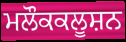
ਮਲੌਕਕਲੂਸ਼ਨ